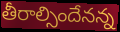
తీరాల్సిందేనన్న